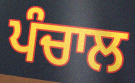
ਪੰਚਾਲ